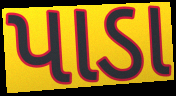
પાડા